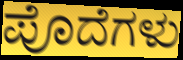
ಪೊದೆಗಳು